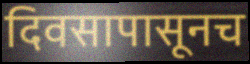
दिवसापासूनच